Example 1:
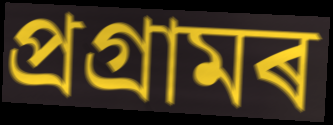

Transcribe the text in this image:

প্ৰগ্ৰামৰ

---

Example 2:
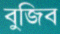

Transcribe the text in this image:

বুজিব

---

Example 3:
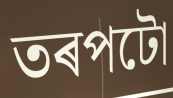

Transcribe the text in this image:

তৰপটো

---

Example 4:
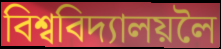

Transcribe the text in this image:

বিশ্ববিদ্যালয়লৈ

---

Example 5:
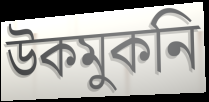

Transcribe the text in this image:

উকমুকনি